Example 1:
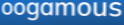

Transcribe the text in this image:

oogamous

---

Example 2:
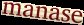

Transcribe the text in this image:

manase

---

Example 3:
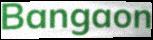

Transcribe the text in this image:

Bangaon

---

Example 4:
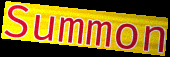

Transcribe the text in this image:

Summon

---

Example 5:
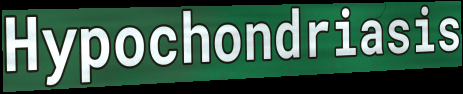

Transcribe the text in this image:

Hypochondriasis